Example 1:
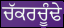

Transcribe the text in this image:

ਚੱਕਰਚੂੰਢੇ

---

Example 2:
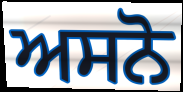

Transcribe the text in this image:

ਅਸਨੋ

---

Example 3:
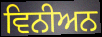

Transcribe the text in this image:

ਵਿਨੀਅਨ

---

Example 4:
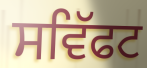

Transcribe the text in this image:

ਸਵਿੱਫਟ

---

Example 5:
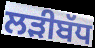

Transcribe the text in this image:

ਲੜੀਬੱਧ